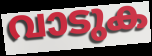
വാടുക